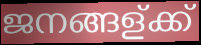
ജനങ്ങള്ക്ക്